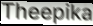
Theepika